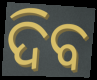
ଦିବ